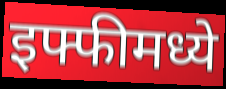
इफ्फीमध्ये